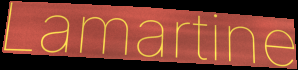
Lamartine